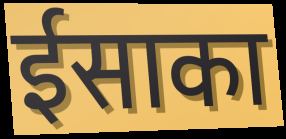
ईसाका